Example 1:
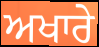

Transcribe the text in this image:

ਅਖਾਰੇ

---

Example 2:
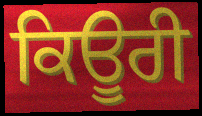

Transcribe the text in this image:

ਕਿਊਰੀ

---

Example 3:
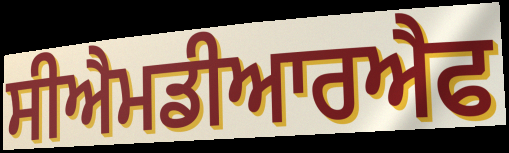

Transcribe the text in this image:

ਸੀਐਮਡੀਆਰਐਫ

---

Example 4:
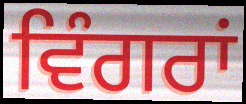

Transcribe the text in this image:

ਵਿੰਗਰਾਂ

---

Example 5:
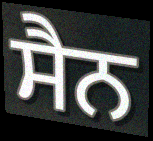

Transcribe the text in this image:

ਸੈਨ